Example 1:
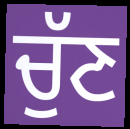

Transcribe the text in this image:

ਚੁੱਣ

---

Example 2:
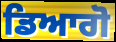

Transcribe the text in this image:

ਡਿਆਗੋ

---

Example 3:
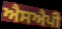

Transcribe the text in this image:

ਐਸਐਪੀ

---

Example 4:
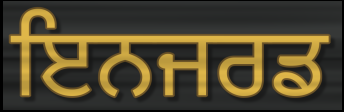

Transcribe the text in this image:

ਇਨਜਰਡ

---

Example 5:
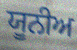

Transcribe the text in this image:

ਯੂਨੀਅ